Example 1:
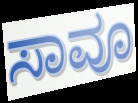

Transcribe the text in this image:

ಸಾವೂ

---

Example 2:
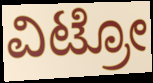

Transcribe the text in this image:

ವಿಟ್ರೋ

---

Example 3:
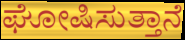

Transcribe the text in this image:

ಘೋಷಿಸುತ್ತಾನೆ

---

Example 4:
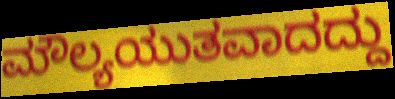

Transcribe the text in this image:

ಮೌಲ್ಯಯುತವಾದದ್ದು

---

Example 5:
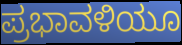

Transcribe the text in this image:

ಪ್ರಭಾವಳಿಯೂ